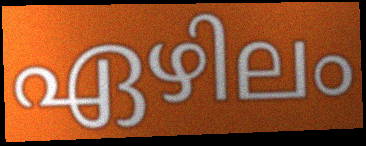
ഏഴിലം